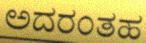
ಅದರಂತಹ